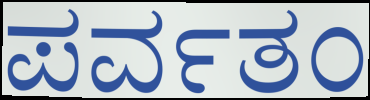
ಪರ್ವತಂ